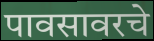
पावसावरचे